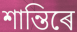
শান্তিৰে